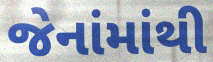
જેનાંમાંથી